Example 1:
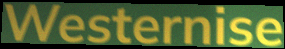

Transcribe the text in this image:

Westernise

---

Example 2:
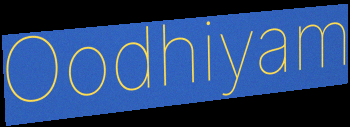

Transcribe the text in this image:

Oodhiyam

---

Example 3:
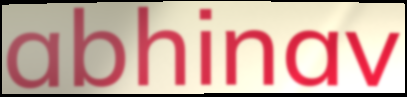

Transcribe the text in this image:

abhinav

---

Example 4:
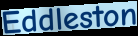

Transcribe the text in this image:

Eddleston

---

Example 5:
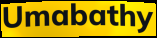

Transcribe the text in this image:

Umabathy